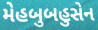
મેહબુબહુસેન